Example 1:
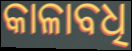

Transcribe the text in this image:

କାଳାବଧି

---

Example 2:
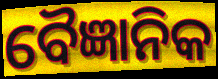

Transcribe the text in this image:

ବୈଜ୍ଞାନିକ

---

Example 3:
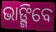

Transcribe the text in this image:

ଭାଙ୍ଗିବେ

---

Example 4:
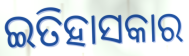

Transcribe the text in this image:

ଇତିହାସକାର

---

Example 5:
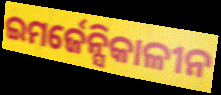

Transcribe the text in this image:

ଇମର୍ଜେନ୍ସିକାଳୀନ